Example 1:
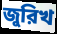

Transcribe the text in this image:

জুরিখ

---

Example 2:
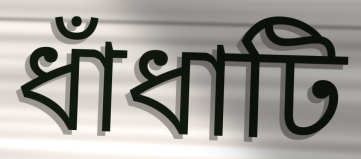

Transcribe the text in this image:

ধাঁধাটি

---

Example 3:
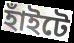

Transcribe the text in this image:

হাঁইটে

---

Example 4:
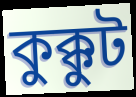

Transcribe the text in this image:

কুক্কুট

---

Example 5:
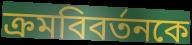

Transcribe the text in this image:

ক্রমবিবর্তনকে